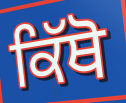
ਕਿੱਥੋ